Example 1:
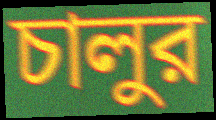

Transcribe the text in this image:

চালুর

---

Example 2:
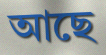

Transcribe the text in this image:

আছে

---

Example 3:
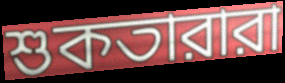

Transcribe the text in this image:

শুকতারারা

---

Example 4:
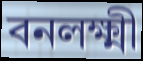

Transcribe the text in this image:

বনলক্ষ্মী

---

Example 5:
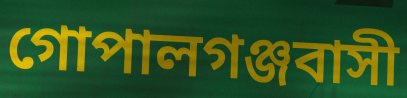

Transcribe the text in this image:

গোপালগঞ্জবাসী